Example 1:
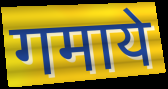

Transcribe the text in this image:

गमाये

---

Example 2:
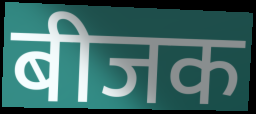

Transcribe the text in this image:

बीजक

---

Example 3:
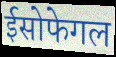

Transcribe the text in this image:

ईसोफेगल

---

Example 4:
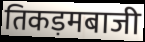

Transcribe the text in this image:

तिकड़मबाजी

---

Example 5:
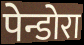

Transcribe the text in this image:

पेन्डोरा